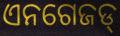
ଏନଗେଜଡ୍